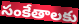
సంకేతాలకు